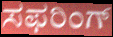
ಸಫರಿಂಗ್